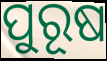
ପୁରୂଷ